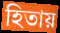
হিতায়